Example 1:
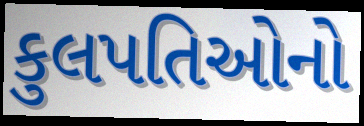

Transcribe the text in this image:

કુલપતિઓનો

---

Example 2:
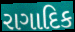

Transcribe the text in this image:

રાગાદિક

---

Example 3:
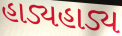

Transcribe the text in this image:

હાડ્યહાડ્ય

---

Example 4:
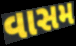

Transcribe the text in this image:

વાસમ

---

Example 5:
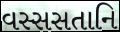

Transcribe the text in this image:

વસ્સસતાનિ